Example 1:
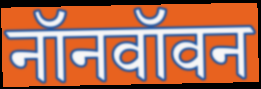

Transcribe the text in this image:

नॉनवॉवन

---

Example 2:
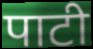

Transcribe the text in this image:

पाटी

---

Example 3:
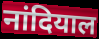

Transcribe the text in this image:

नांदियाल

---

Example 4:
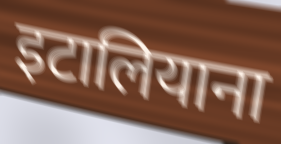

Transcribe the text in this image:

इटालियाना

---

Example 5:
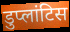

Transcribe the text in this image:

डुप्लांटिस